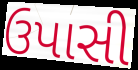
ઉપાસી